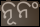
ନୂନଂ